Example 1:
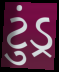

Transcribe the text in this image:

ટુંડ્ર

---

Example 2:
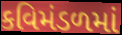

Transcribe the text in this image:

કવિમંડળમાં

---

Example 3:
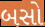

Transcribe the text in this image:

બસો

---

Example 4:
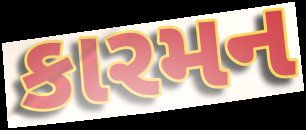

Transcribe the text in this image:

કારમન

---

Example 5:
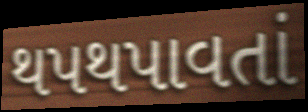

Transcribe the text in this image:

થપથપાવતાં